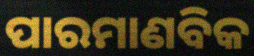
ପାରମାଣବିକ